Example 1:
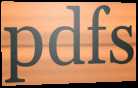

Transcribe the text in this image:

pdfs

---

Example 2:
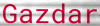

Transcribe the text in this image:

Gazdar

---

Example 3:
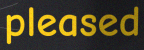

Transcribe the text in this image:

pleased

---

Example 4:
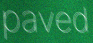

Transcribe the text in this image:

paved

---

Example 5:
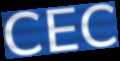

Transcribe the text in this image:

CEC